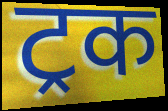
ट्रक